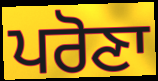
ਪਰੋਣਾ